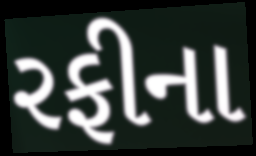
રફીના